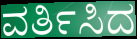
ವರ್ತಿಸಿದ